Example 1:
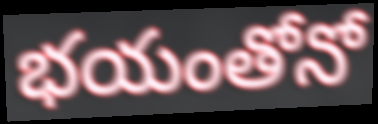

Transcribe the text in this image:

భయంతోనో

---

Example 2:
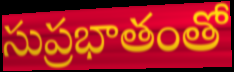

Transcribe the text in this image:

సుప్రభాతంతో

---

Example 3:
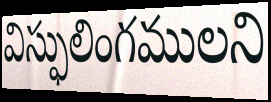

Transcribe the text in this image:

విస్ఫులింగములని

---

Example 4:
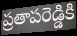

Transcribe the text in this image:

ప్రతాపరెడ్డికి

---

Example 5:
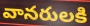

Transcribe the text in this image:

వానరులకి